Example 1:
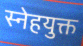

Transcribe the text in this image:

स्नेहयुक्त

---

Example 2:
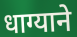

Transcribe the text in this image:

धाग्याने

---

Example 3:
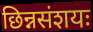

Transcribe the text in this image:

छिन्नसंशयः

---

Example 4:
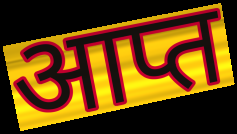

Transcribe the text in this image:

आप्त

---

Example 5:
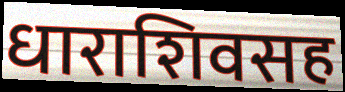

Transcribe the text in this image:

धाराशिवसह